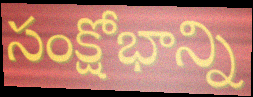
సంక్షోభాన్ని